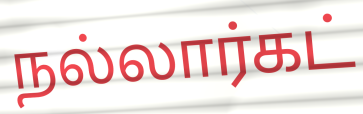
நல்லார்கட்